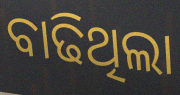
ବାଢିଥିଲା